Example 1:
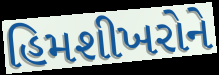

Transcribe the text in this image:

હિમશીખરોને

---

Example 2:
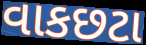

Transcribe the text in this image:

વાકછટા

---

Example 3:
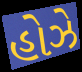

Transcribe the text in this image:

હોઝે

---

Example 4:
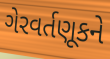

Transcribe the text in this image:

ગેરવર્તણૂકને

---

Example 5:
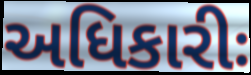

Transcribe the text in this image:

અધિકારીઃ